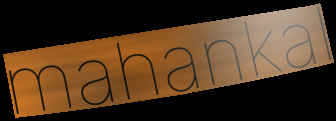
mahankal